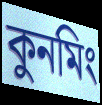
কুনমিং